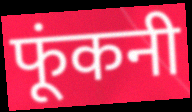
फूंकनी